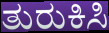
ತುರುಕಿಸಿ